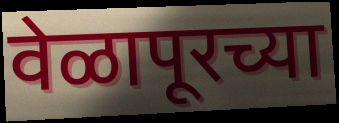
वेळापूरच्या